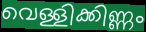
വെള്ളിക്കിണ്ണം